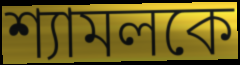
শ্যামলকে